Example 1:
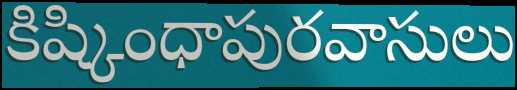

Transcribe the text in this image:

కిష్కింధాపురవాసులు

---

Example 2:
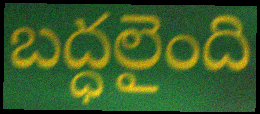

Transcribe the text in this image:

బద్ధలైంది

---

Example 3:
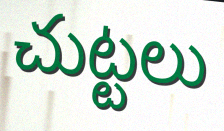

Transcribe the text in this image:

చుట్టలు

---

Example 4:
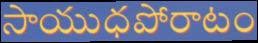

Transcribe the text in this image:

సాయుధపోరాటం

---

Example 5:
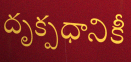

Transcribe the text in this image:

దృక్పధానికీ